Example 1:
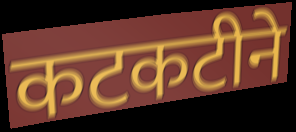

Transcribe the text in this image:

कटकटीने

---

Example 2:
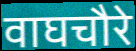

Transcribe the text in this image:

वाघचौरे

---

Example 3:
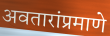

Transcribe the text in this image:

अवतारांप्रमाणे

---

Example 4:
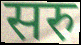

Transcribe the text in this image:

सरु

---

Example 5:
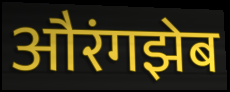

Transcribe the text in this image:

औरंगझेब